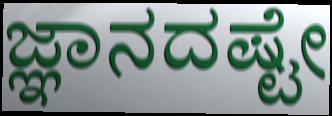
ಜ್ಞಾನದಷ್ಟೇ